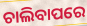
ଚାଲିବାପରେ